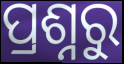
ପ୍ରଶ୍ନରୁ